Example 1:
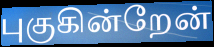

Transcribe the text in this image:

புகுகின்றேன்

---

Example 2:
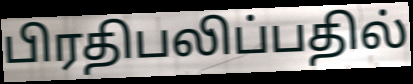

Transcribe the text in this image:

பிரதிபலிப்பதில்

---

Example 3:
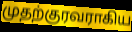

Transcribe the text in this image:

முதற்குரவராகிய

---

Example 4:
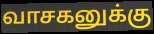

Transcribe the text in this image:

வாசகனுக்கு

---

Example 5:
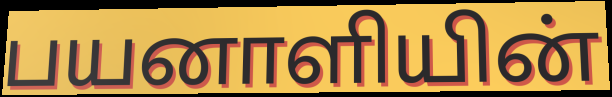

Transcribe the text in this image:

பயனாளியின்